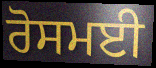
ਰੋਸਮਈ